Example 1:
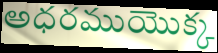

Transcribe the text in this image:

అధరముయొక్క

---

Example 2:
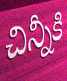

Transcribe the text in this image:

చిన్నీకి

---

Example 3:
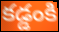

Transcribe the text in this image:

కడ్డంకి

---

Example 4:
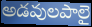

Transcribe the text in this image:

అడవులపాలై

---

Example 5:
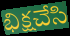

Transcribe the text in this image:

భిక్షచేసి